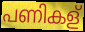
പണികള്